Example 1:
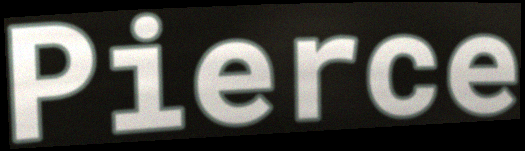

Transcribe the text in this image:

Pierce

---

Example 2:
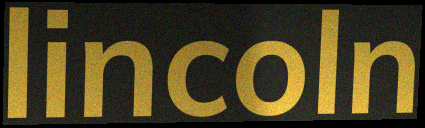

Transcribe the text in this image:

lincoln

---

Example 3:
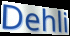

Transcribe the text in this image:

Dehli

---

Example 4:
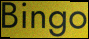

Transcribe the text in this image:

Bingo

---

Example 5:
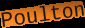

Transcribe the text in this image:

Poulton